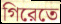
গিরেতে